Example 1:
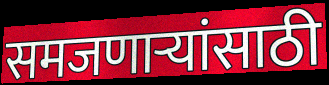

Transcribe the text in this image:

समजणाऱ्यांसाठी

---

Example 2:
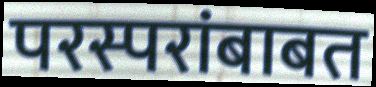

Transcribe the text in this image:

परस्परांबाबत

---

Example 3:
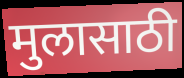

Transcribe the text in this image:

मुलासाठी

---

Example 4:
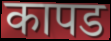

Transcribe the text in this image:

कापड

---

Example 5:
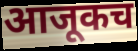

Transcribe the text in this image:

आजूकच